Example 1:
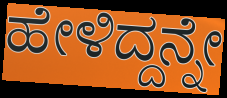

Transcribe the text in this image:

ಹೇಳಿದ್ದನ್ನೇ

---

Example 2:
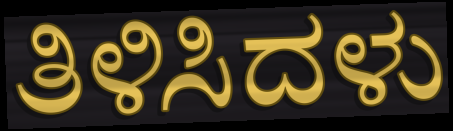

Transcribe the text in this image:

ತಿಳಿಸಿದಳು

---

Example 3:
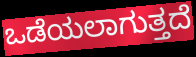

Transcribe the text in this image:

ಒಡೆಯಲಾಗುತ್ತದೆ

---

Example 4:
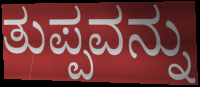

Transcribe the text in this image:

ತುಪ್ಪವನ್ನು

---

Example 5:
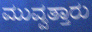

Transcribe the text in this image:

ಮುವ್ವತ್ತಾರು